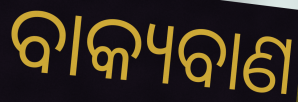
ବାକ୍ୟବାଣ